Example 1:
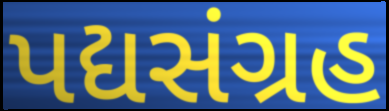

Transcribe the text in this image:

પદ્યસંગ્રહ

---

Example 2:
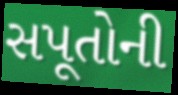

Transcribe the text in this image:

સપૂતોની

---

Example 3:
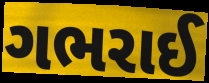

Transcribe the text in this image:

ગભરાઈ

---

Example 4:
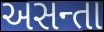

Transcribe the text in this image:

અસન્તા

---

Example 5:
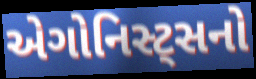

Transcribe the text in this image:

એગોનિસ્ટ્સનો